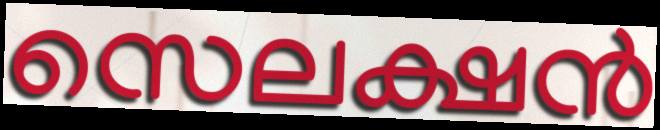
സെലക്ഷൻ